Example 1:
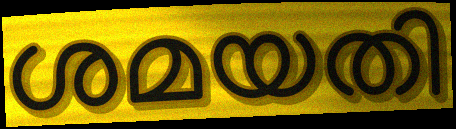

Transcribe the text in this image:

ശമയതി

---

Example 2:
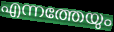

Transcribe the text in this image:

എന്നത്തേയും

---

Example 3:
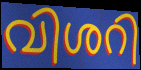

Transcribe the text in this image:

വിശറി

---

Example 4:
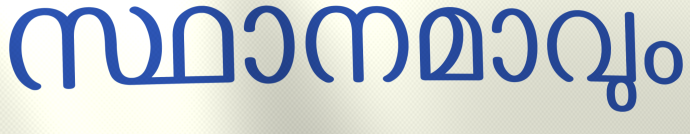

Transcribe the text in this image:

സ്ഥാനമാവും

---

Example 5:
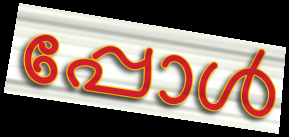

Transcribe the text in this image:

പ്പോൾ